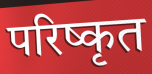
परिष्कृत